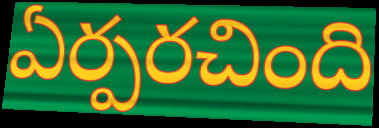
ఏర్పరచింది